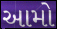
આમો